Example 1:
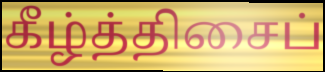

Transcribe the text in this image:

கீழ்த்திசைப்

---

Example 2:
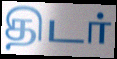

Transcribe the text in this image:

திடர்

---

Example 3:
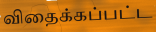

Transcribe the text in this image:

விதைக்கப்பட்ட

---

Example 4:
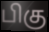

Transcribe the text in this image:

பிகு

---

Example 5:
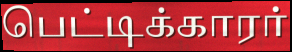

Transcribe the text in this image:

பெட்டிக்காரர்